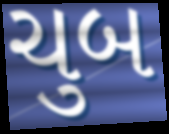
ચુબ